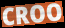
CROO